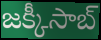
జక్కీసాబ్